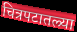
चित्रपटातल्या